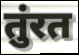
तुंरत